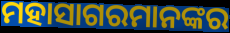
ମହାସାଗରମାନଙ୍କର